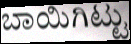
ಬಾಯಿಗಿಟ್ಟು